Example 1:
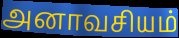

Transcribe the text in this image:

அனாவசியம்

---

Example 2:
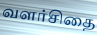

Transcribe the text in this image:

வளர்சிதை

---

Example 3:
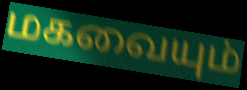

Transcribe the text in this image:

மகவையும்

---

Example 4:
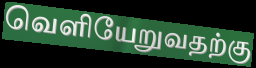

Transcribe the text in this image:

வெளியேறுவதற்கு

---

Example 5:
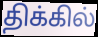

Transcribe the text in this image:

திக்கில்